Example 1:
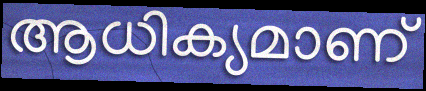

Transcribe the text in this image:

ആധിക്യമാണ്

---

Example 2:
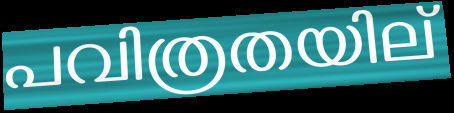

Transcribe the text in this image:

പവിത്രതയില്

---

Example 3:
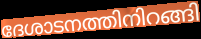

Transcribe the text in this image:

ദേശാടനത്തിനിറങ്ങി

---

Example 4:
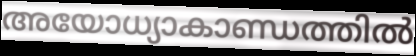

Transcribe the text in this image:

അയോധ്യാകാണ്ഡത്തിൽ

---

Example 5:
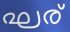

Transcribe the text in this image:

ഘര്